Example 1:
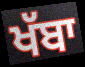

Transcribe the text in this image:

ਖੱਬਾ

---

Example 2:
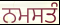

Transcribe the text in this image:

ਨਮਸਤੰ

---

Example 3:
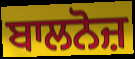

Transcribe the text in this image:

ਬਾਲਨੋਜ਼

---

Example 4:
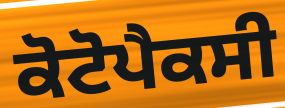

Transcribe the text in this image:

ਕੋਟੋਪੈਕਸੀ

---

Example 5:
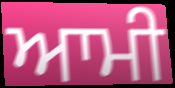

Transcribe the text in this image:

ਆਮੀ